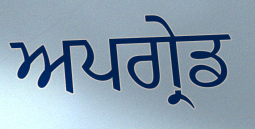
ਅਪਗ੍ਰੇਡ